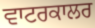
ਵਾਟਰਕਾਲਰ